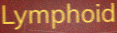
Lymphoid